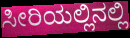
ಸೀರಿಯಲ್ಲಿನಲ್ಲಿ